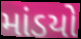
માંડયો